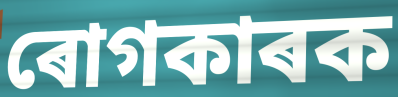
ৰোগকাৰক